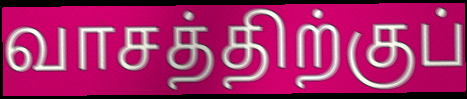
வாசத்திற்குப்